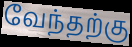
வேந்தற்கு